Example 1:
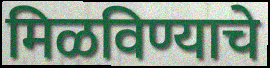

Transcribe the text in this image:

मिळविण्याचे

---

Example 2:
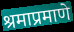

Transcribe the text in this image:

श्रमाप्रमाणे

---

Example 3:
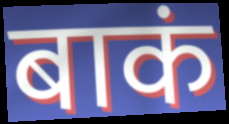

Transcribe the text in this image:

बाकं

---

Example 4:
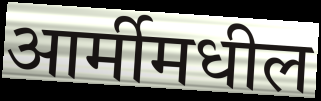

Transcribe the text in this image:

आर्मीमधील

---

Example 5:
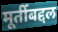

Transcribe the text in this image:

मूर्तीबद्दल